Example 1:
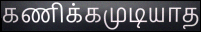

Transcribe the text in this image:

கணிக்கமுடியாத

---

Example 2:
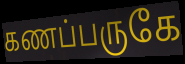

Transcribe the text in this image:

கணப்பருகே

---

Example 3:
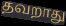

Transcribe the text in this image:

தவறாது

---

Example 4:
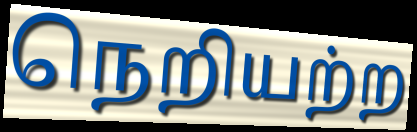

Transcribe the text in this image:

நெறியற்ற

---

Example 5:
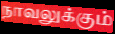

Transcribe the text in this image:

நாவலுக்கும்